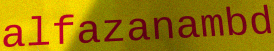
alfazanambd